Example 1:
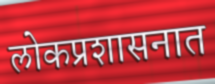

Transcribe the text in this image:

लोकप्रशासनात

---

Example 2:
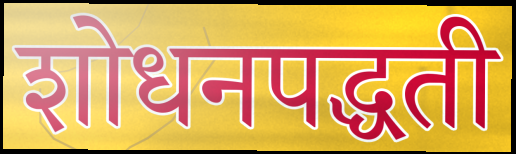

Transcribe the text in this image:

शोधनपद्धती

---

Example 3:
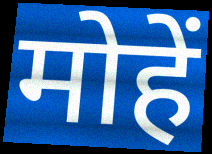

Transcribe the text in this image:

मोहें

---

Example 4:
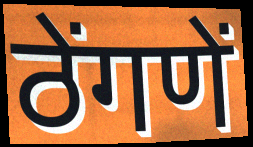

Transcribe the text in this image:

ठेंगणें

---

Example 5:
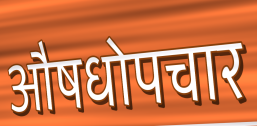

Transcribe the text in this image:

औषधोपचार